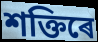
শক্তিৰে